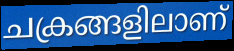
ചക്രങ്ങളിലാണ്